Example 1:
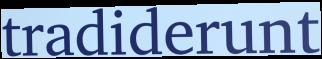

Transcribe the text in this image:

tradiderunt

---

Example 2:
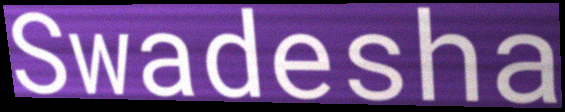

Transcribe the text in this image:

Swadesha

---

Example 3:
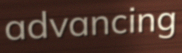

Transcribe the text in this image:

advancing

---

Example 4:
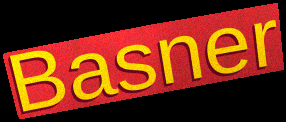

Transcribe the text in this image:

Basner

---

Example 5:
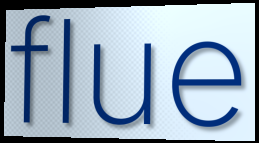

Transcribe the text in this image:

flue